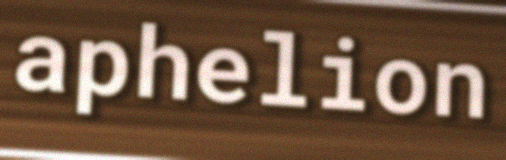
aphelion